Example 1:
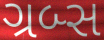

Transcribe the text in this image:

ગ્રબ્સ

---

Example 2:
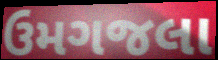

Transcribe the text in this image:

ઉમગજલા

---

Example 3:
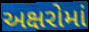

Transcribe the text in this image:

અક્ષરોમાં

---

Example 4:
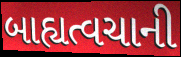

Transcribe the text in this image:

બાહ્યત્વચાની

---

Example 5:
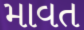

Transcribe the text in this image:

માવત